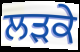
ਲਡ਼ਕੇ